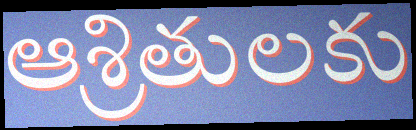
ఆశ్రితులకు